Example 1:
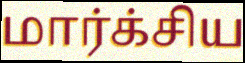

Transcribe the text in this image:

மார்க்சிய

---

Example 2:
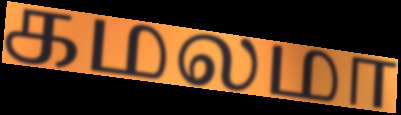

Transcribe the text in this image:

கமலமா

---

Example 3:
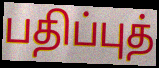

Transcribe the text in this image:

பதிப்புத்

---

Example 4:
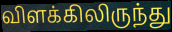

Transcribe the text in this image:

விளக்கிலிருந்து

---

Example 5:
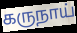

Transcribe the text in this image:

கருநாய்